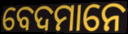
ବେଦମାନେ